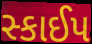
સ્કાઈપ